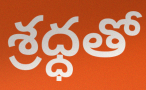
శ్రధ్ధతో